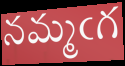
నమ్మఁగ